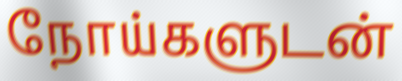
நோய்களுடன்